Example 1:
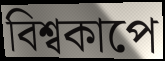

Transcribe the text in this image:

বিশ্বকাপে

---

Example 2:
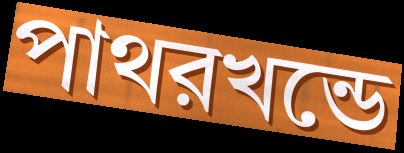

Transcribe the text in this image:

পাথরখন্ডে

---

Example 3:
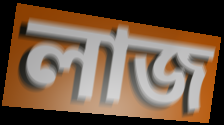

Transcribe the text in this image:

লাজ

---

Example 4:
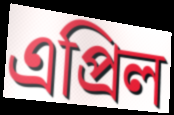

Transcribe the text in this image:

এপ্রিল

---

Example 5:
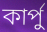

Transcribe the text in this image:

কার্পু